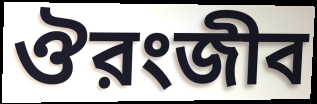
ঔরংজীব